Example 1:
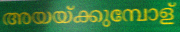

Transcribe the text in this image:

അയയ്ക്കുമ്പോള്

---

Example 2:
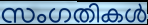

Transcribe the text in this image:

സംഗതികൾ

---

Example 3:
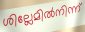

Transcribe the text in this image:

ശില്ലേമിൽനിന്ന്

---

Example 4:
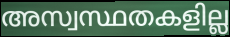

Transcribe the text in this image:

അസ്വസ്ഥതകളില്ല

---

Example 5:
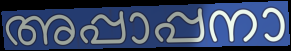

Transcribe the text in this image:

അപ്പാപ്പനാ